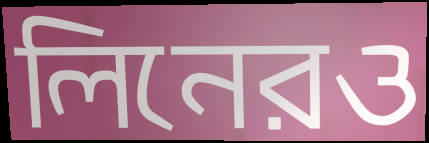
লিনেরও